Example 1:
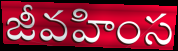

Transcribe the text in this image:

జీవహింస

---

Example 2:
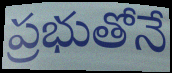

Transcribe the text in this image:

ప్రభుతోనే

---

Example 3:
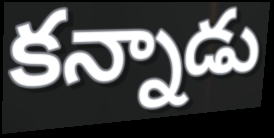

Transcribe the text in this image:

కన్నాడు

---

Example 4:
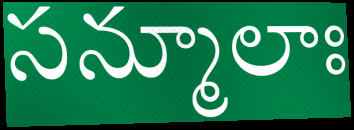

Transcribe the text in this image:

సన్మూలాః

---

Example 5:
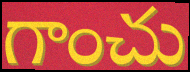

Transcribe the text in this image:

గాంచు